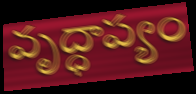
వృద్ధాప్యం